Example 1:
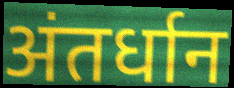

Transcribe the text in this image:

अंतर्धान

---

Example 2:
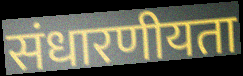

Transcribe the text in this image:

संधारणीयता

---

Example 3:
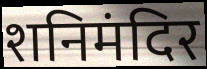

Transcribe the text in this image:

शनिमंदिर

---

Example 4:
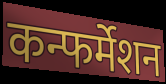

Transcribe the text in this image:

कन्फर्मेशन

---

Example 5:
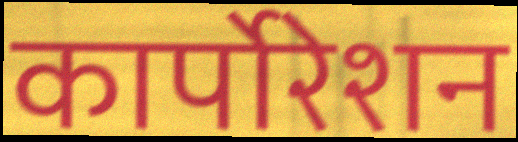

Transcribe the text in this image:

कार्पोरेशन